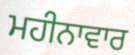
ਮਹੀਨਾਵਾਰ